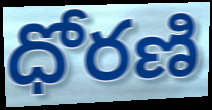
ధోరణి